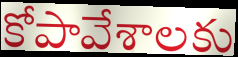
కోపావేశాలకు